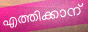
എത്തിക്കാന്